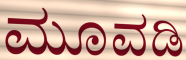
ಮೂವಡಿ